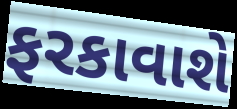
ફરકાવાશે